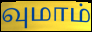
வுமாம்